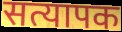
सत्यापक